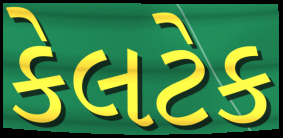
કેલટેક